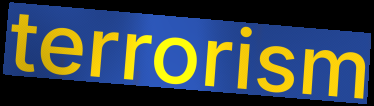
terrorism